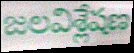
జలవిశ్లేషణ